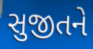
સુજીતને